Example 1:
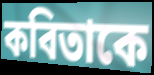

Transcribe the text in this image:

কবিতাকে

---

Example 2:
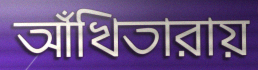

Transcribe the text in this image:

আঁখিতারায়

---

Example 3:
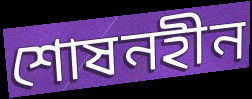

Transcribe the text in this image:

শোষনহীন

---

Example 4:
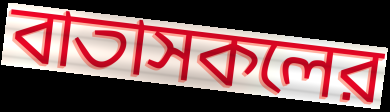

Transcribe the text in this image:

বাতাসকলের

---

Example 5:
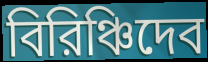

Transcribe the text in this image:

বিরিঞ্চিদেব